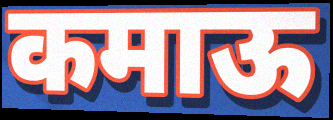
कमाऊ